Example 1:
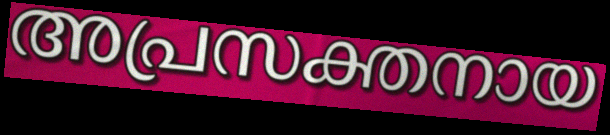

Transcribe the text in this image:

അപ്രസക്തനായ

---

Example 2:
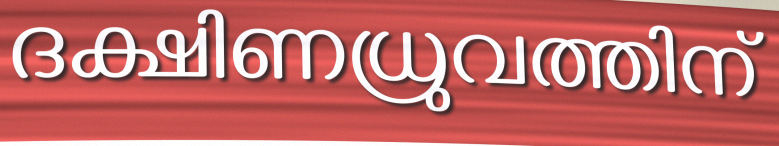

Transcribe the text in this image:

ദക്ഷിണധ്രുവത്തിന്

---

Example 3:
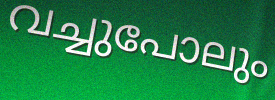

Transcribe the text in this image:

വച്ചുപോലും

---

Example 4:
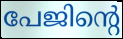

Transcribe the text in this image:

പേജിന്റെ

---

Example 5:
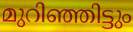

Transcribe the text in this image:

മുറിഞ്ഞിട്ടും